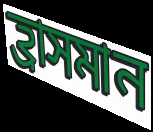
হ্ৰাসমান